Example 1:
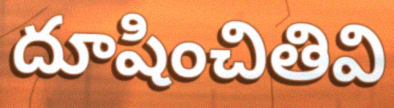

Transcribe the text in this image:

దూషించితివి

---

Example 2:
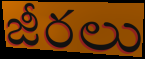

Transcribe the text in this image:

జీరలు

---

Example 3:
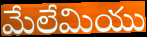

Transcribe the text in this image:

మేలేమియు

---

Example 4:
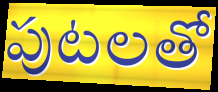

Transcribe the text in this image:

పుటలతో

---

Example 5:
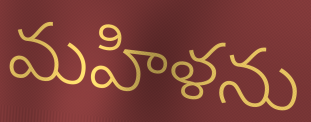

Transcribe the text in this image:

మహిళను